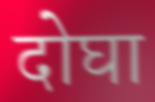
दोघा